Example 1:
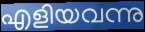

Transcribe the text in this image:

എളിയവന്നു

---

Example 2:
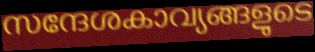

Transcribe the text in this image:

സന്ദേശകാവ്യങ്ങളുടെ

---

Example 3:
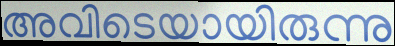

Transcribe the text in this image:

അവിടെയായിരുന്നു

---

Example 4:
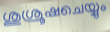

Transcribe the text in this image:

ശുശ്രൂഷചെയ്യും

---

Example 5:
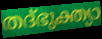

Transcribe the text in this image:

തദ്ഭുക്ത്യാ